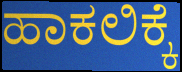
ಹಾಕಲಿಕ್ಕೆ